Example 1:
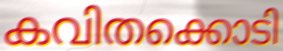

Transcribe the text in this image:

കവിതക്കൊടി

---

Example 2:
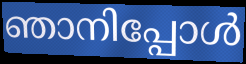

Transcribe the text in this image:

ഞാനിപ്പോൾ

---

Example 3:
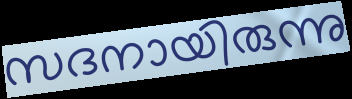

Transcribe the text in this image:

സദനായിരുന്നു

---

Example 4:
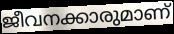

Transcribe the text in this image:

ജീവനക്കാരുമാണ്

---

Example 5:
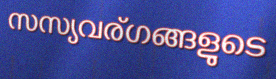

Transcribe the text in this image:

സസ്യവര്ഗങ്ങളുടെ